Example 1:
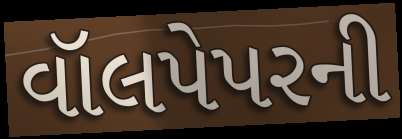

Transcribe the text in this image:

વૉલપેપરની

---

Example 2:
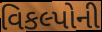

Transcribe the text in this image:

વિકલ્પોની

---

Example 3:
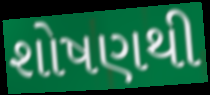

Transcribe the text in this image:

શોષણથી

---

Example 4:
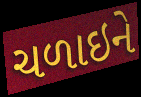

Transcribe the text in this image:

ચળાઇને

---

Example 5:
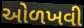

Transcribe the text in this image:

ઓળખવી